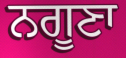
ਨਗੂਣਾ